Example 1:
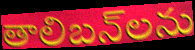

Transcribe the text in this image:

తాలిబన్‌లను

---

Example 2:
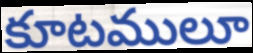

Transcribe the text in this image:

కూటములూ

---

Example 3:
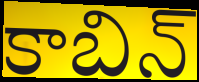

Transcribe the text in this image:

కాబిన్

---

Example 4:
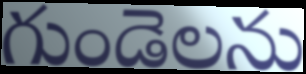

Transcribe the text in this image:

గుండెలను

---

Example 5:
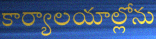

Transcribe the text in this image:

కార్యాలయాల్లోను